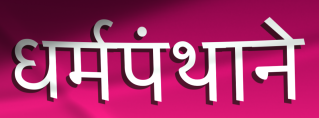
धर्मपंथाने